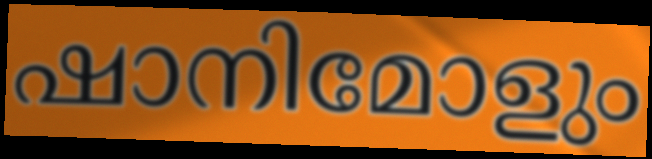
ഷാനിമോളും